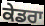
ਕੇਡਰਾ